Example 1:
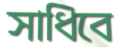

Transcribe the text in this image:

সাধিবে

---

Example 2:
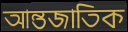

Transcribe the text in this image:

আন্তজাতিক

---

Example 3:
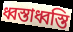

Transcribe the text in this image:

ধ্বস্তাধ্বস্তি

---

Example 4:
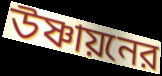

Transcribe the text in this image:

উষ্ণায়নের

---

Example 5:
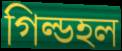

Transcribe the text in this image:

গিল্ডহল